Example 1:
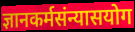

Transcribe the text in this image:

ज्ञानकर्मसंन्यासयोग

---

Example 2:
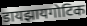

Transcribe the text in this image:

डायझायगोटिक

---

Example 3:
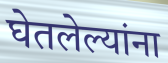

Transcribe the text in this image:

घेतलेल्यांना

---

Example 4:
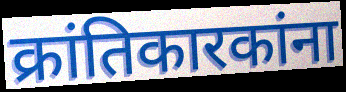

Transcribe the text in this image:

क्रांतिकारकांना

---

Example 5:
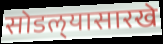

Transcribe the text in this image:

सोडल्यासारखे